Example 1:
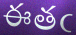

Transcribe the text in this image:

ఈతఁ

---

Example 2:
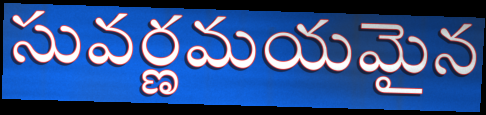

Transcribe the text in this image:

సువర్ణమయమైన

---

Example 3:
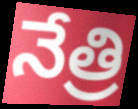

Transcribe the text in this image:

నేత్రి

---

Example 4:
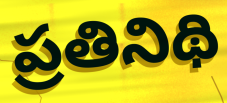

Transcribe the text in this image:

ప్రతినిథి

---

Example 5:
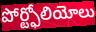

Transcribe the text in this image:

పోర్ట్ఫోలియోలు